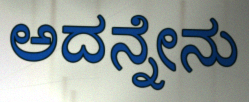
ಅದನ್ನೇನು